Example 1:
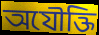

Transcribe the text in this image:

অযৌক্তি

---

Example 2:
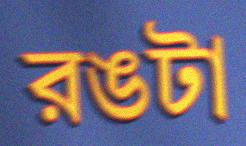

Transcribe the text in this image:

রঙটা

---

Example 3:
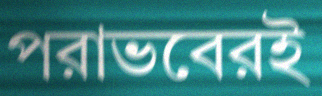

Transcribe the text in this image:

পরাভবেরই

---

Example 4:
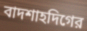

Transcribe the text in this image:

বাদশাহদিগের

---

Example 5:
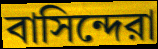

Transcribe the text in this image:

বাসিন্দেরা